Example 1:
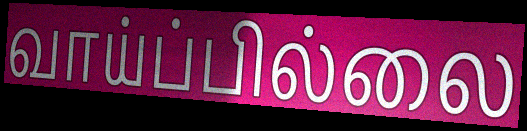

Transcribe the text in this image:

வாய்ப்பில்லை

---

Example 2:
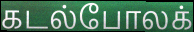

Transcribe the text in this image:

கடல்போலக்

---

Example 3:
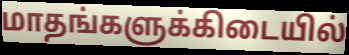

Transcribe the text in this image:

மாதங்களுக்கிடையில்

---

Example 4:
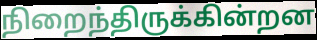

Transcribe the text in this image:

நிறைந்திருக்கின்றன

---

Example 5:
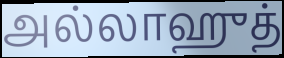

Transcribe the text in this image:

அல்லாஹுத்